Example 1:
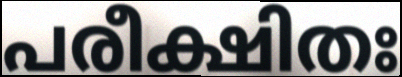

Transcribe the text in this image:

പരീക്ഷിതഃ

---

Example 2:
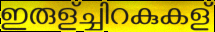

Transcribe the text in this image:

ഇരുള്ച്ചിറകുകള്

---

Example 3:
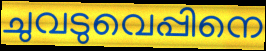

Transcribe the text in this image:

ചുവടുവെപ്പിനെ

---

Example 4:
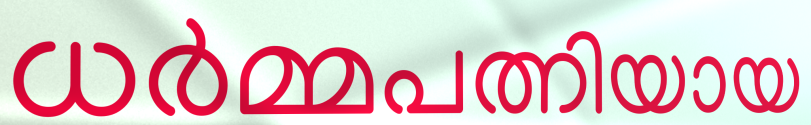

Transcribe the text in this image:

ധർമ്മപത്നിയായ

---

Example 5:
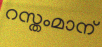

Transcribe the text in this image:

റസ്തംമാന്